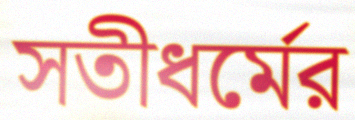
সতীধর্মের